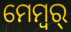
ମେମ୍ବର୍